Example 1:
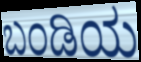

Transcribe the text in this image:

ಬಂಡಿಯ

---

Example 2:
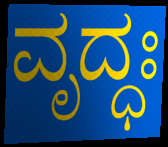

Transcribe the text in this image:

ವೃದ್ಧಃ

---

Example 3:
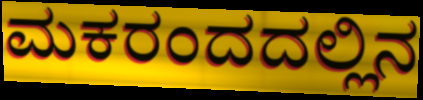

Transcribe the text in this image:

ಮಕರಂದದಲ್ಲಿನ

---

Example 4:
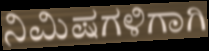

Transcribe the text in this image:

ನಿಮಿಷಗಳಿಗಾಗಿ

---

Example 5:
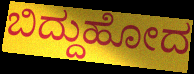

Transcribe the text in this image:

ಬಿದ್ದುಹೋದ